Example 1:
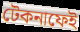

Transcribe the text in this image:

টেকনাফেই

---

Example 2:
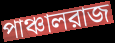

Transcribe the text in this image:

পাঞ্চালরাজ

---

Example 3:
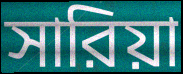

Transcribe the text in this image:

সারিয়া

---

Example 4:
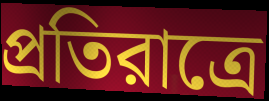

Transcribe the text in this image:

প্রতিরাত্রে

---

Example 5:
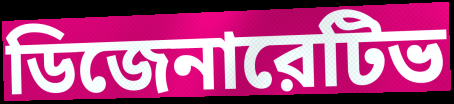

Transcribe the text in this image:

ডিজেনারেটিভ